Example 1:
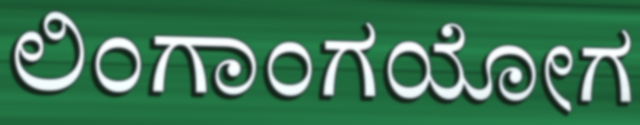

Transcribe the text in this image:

ಲಿಂಗಾಂಗಯೋಗ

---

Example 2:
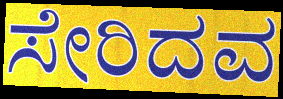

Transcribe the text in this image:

ಸೇರಿದವ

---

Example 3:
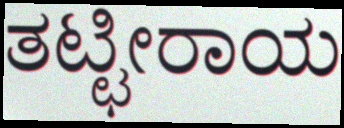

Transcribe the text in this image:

ತಟ್ಟೀರಾಯ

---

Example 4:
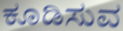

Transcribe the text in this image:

ಕೂಡಿಸುವ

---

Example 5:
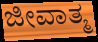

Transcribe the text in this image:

ಜೀವಾತ್ಮ